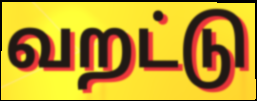
வறட்டு